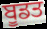
ਬੂਡਤ